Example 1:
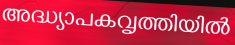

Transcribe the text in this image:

അദ്ധ്യാപകവൃത്തിയിൽ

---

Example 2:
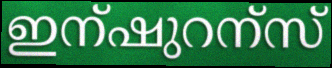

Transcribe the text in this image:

ഇന്ഷുറന്സ്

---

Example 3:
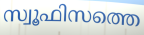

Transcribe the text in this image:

സ്വൂഫിസത്തെ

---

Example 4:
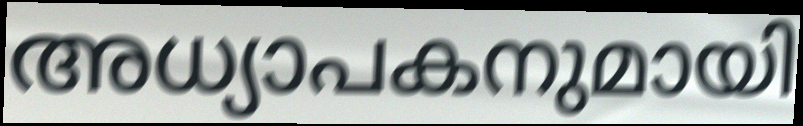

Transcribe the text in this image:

അധ്യാപകനുമായി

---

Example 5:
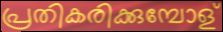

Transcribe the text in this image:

പ്രതികരിക്കുമ്പോള്